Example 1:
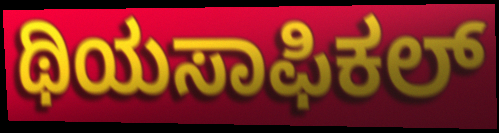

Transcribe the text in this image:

ಥಿಯಸಾಫಿಕಲ್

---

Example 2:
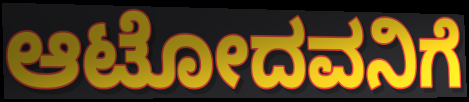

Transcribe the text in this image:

ಆಟೋದವನಿಗೆ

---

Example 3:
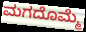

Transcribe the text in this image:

ಮಗದೊಮ್ಮೆ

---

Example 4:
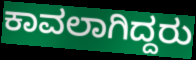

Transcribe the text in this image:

ಕಾವಲಾಗಿದ್ದರು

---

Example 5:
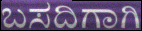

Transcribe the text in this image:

ಬಸದಿಗಾಗಿ